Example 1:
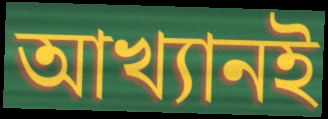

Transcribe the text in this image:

আখ্যানই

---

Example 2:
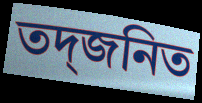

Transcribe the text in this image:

তদ্জনিত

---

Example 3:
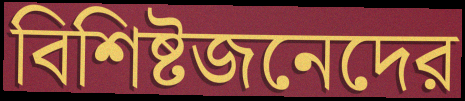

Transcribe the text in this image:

বিশিষ্টজনেদের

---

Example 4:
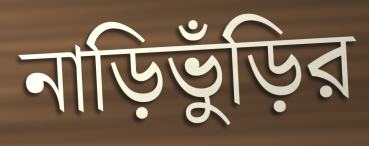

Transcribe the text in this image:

নাড়িভুঁড়ির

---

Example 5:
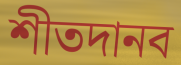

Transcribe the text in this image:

শীতদানব